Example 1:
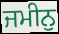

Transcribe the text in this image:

ਜਮੀਨੁ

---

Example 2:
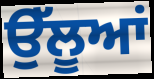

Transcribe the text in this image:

ਉੱਲੂਆਂ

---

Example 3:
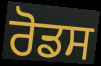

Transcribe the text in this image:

ਰੋਡਸ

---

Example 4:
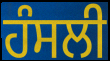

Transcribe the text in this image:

ਹੰਸਲੀ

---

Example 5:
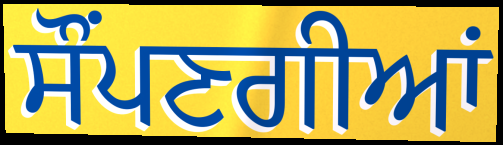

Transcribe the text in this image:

ਸੌਂਪਣਗੀਆਂ